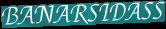
BANARSIDASS